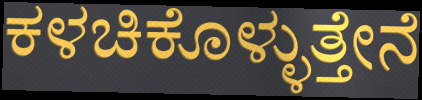
ಕಳಚಿಕೊಳ್ಳುತ್ತೇನೆ